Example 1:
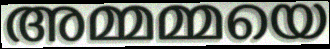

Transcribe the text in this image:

അമ്മമ്മയെ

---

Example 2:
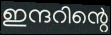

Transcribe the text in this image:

ഇന്ദറിന്റെ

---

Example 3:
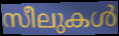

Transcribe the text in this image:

സീലുകൾ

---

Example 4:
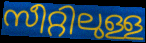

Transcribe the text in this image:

സീറ്റിലുള്ള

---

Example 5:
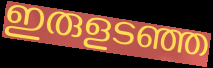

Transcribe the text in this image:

ഇരുളടഞ്ഞ